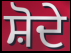
ਸ਼ੋਦੇ